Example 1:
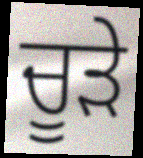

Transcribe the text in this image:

ਚੂੜੇ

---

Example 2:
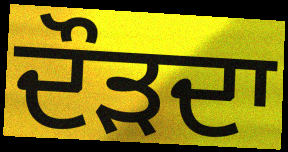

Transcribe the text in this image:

ਦੌੜਦਾ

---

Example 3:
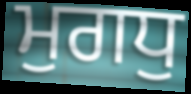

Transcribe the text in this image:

ਮੁਗਧੁ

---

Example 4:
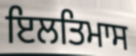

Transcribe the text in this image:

ਇਲਤਿਮਾਸ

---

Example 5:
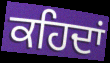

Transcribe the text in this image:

ਕਹਿਦਾਂ